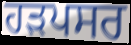
ਹੜਪਸਰ